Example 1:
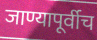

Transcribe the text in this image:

जाण्यापूर्वीच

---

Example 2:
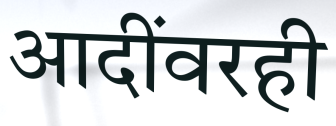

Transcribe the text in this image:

आदींवरही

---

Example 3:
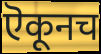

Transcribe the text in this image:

ऎकूनच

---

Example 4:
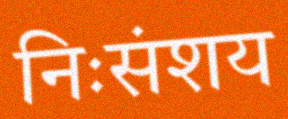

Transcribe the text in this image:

निःसंशय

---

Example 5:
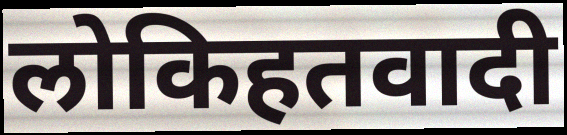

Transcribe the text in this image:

लोकिहतवादी